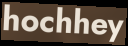
hochhey